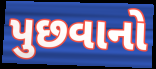
પુછવાનો